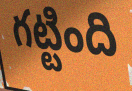
గట్టింది